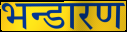
भन्डारण